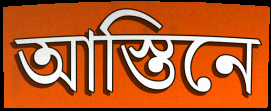
আস্তিনে